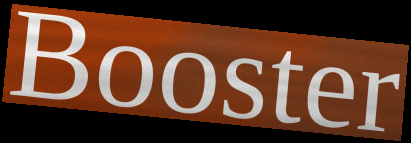
Booster